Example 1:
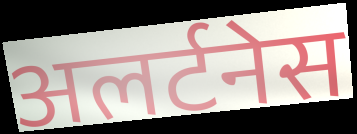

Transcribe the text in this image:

अलर्टनेस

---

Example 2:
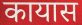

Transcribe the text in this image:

कायास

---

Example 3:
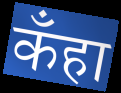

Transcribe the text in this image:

कँहा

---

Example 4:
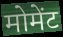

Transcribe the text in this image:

मोमेंट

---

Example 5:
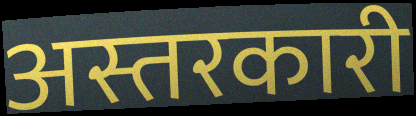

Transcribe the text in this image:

अस्तरकारी